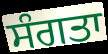
ਸੰਗਤਾ